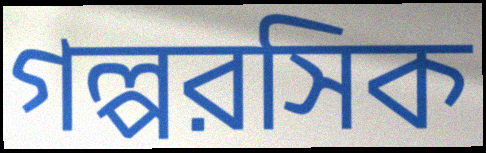
গল্পরসিক